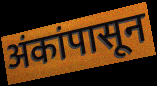
अंकांपासून